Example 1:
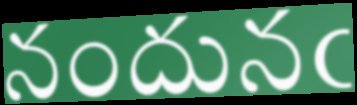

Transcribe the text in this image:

నందునఁ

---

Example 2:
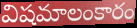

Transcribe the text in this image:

విషమాలంకారం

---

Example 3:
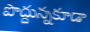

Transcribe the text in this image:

పొద్దున్నకూడా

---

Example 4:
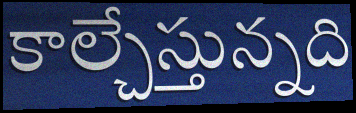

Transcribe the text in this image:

కాల్చేస్తున్నది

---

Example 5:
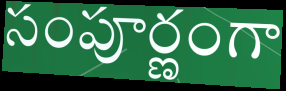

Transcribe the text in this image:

సంపూర్ణంగా